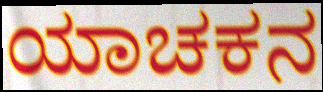
ಯಾಚಕನ